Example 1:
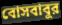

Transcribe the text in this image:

বোসবাবুর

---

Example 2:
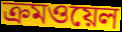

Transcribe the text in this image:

ক্রমওয়েল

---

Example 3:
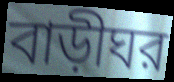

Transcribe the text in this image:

বাড়ীঘর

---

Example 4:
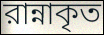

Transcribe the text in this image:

রান্নাকৃত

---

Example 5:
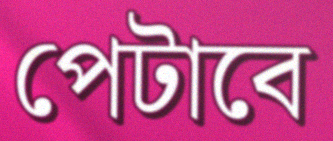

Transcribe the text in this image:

পেটাবে